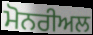
ਮੋਨਰੀਅਲ